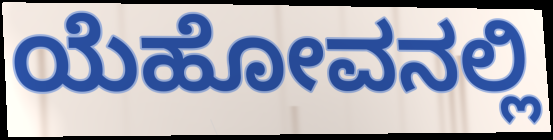
ಯೆಹೋವನಲ್ಲಿ